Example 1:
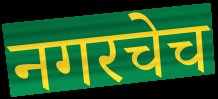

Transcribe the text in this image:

नगरचेच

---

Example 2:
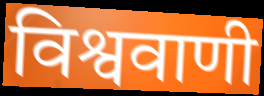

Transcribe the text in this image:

विश्ववाणी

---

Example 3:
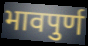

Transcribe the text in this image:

भावपुर्ण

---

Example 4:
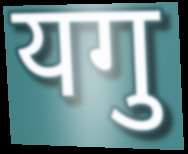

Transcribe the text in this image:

यगु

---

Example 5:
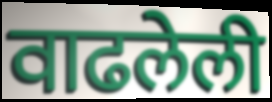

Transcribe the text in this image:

वाढलेली